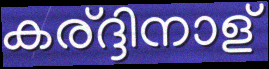
കര്ദ്ദിനാള്